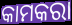
କାମକରା